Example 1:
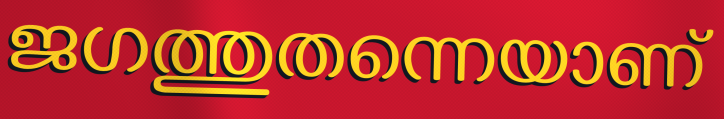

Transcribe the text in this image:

ജഗത്തുതന്നെയാണ്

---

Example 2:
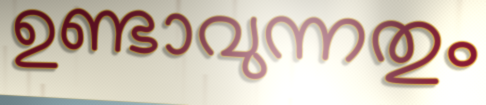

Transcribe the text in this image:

ഉണ്ടാവുന്നതും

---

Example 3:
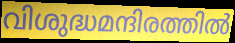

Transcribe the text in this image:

വിശുദ്ധമന്ദിരത്തിൽ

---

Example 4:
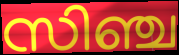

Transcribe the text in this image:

സിഞ്ച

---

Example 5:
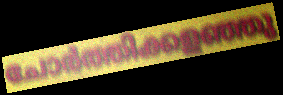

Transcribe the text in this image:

ചോർത്തിക്കളഞ്ഞു